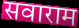
सवाराम